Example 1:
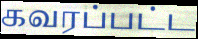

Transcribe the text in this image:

கவரப்பட்ட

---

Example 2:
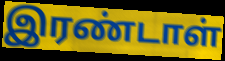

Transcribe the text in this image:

இரண்டாள்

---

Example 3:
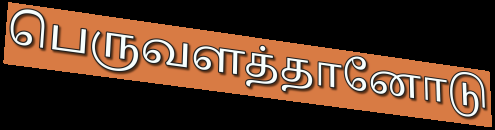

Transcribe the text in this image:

பெருவளத்தானோடு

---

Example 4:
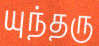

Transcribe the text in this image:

யுந்தரு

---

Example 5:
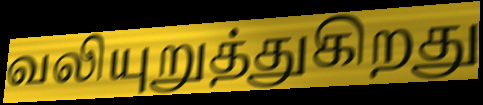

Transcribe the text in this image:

வலியுறுத்துகிறது